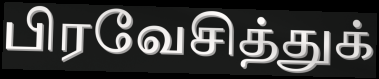
பிரவேசித்துக்